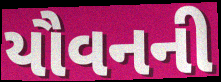
યૌવનની